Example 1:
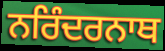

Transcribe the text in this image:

ਨਰਿੰਦਰਨਾਥ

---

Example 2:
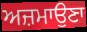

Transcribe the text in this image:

ਅਜ਼ਮਾਉਣਾ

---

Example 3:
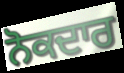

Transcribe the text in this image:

ਨੋਕਦਾਰ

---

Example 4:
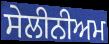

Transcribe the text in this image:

ਸੇਲੀਨੀਅਮ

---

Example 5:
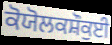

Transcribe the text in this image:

ਕੋਯੋਲਕਸ਼ੌਕੁਈ